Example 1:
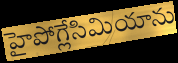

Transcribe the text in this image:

హైపోగ్లేసిమియాను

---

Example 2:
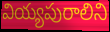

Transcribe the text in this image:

వియ్యపురాలిని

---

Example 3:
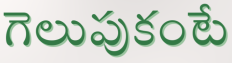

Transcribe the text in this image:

గెలుపుకంటే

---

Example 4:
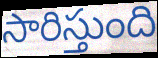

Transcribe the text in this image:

సారిస్తుంది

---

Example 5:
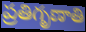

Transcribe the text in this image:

ప్రతిగృణాతి